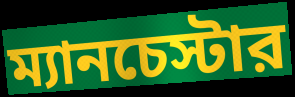
ম্যানচেস্টার